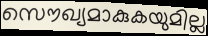
സൌഖ്യമാകുകയുമില്ല